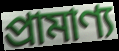
প্ৰামাণ্য